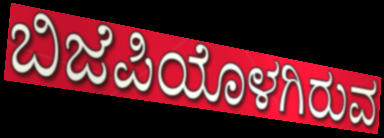
ಬಿಜೆಪಿಯೊಳಗಿರುವ